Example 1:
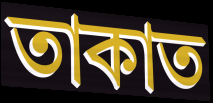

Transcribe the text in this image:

তাকাত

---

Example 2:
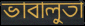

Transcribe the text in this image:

ভাবালুতা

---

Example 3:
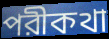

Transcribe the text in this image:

পরীকথা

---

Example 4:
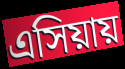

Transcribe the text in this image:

এসিয়ায়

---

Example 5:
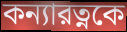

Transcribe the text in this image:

কন্যারত্নকে